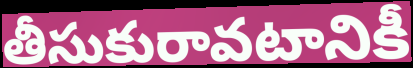
తీసుకురావటానికీ